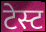
टेस्‍ट